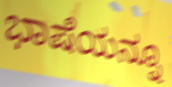
ಭಾಷೆಯನ್ನೂ